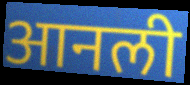
आनली